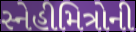
સ્નેહીમિત્રોની